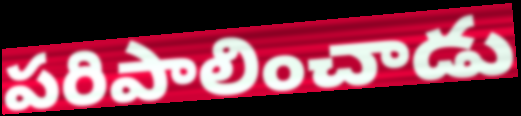
పరిపాలించాడు